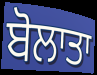
ਬੋਲਾਤਾ